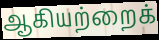
ஆகியற்றைக்